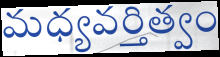
మధ్యవర్తిత్వం